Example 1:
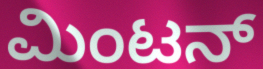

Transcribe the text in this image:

ಮಿಂಟನ್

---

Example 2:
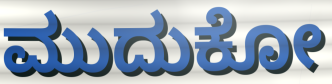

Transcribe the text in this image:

ಮುದುಕೋ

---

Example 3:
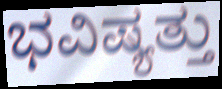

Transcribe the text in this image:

ಭವಿಷ್ಯತ್ತು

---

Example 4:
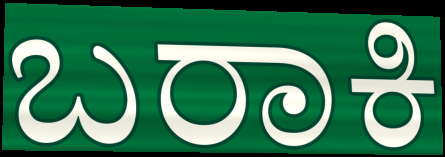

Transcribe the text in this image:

ಬರಾಕಿ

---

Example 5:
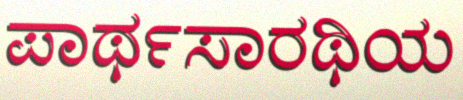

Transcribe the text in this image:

ಪಾರ್ಥಸಾರಥಿಯ